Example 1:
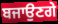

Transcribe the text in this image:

ਬਜਾਉਣਗੇ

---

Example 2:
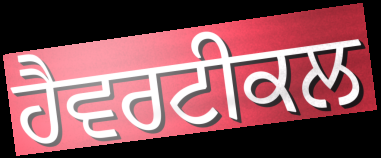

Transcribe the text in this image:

ਹੈਵਰਟੀਕਲ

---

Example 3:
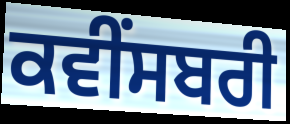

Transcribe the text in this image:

ਕਵੀਂਸਬਰੀ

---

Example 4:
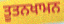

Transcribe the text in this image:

ਤੂਤਨਖਾਮਨ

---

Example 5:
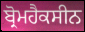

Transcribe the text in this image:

ਬ੍ਰੋਮਹੈਕਸੀਨ